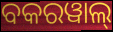
ବକରୱାଲ୍